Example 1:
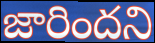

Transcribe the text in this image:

జారిందని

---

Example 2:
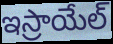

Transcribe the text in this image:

ఇస్రాయేల్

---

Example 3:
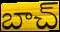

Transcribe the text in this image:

బాచ్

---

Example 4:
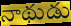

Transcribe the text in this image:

నాథుడు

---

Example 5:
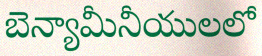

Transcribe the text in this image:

బెన్యామీనీయులలో